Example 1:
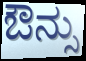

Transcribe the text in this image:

ಔನ್ಸು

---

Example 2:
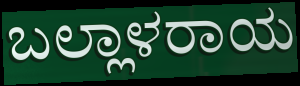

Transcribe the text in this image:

ಬಲ್ಲಾಳರಾಯ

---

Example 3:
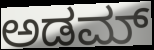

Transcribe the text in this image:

ಅಡಮ್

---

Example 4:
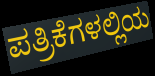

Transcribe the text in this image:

ಪತ್ರಿಕೆಗಳಲ್ಲಿಯ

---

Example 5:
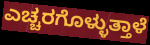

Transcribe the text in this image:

ಎಚ್ಚರಗೊಳ್ಳುತ್ತಾಳೆ